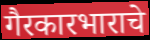
गैरकारभाराचे